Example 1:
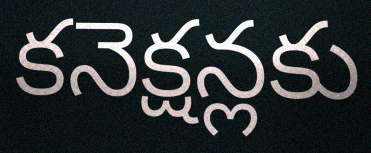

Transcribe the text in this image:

కనెక్షన్లకు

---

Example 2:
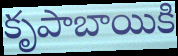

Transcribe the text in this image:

కృపాబాయికి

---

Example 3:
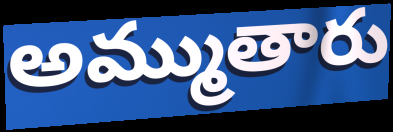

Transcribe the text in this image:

అమ్ముతారు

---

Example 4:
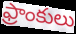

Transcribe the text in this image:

ఫ్రాంకులు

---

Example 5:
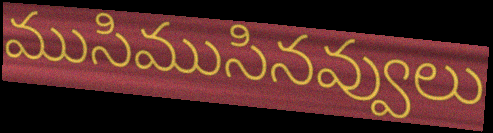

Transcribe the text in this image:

ముసిముసినవ్వులు